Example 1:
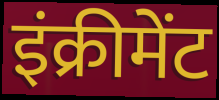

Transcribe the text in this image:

इंक्रीमेंट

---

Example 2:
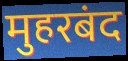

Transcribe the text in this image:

मुहरबंद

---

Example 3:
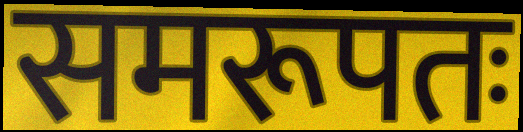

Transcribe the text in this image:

समरूपतः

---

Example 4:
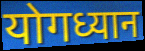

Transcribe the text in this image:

योगध्यान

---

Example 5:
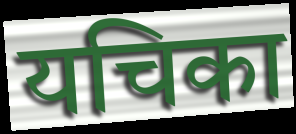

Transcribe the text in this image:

यचिका